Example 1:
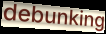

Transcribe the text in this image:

debunking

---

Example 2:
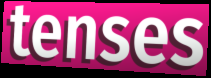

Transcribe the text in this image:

tenses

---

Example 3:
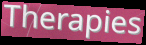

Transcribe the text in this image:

Therapies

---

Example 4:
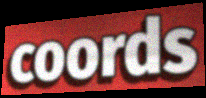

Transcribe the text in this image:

coords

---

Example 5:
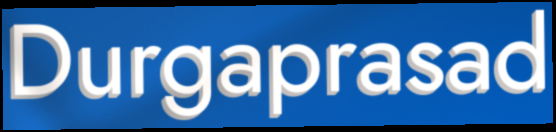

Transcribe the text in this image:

Durgaprasad